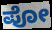
ಪೋ